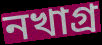
নখাগ্র